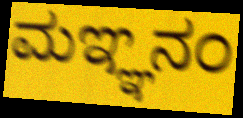
ಮಞ್ಞನಂ